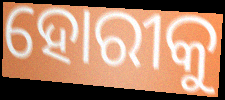
ହୋରୀକୁ